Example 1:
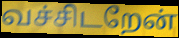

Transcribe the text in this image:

வச்சிடறேன்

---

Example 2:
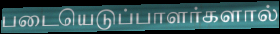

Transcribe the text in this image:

படையெடுப்பாளர்களால்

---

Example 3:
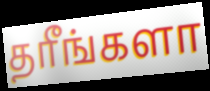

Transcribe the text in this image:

தரீங்களா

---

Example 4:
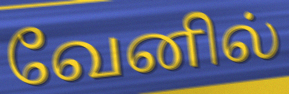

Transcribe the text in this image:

வேனில்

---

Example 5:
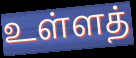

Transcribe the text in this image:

உள்ளத்